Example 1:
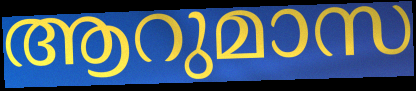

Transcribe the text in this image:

ആറുമാസ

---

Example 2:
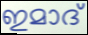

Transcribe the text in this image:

ഇമാദ്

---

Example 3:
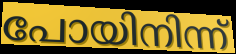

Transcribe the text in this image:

പോയിനിന്ന്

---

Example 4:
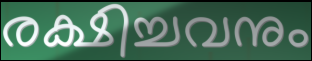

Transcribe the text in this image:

രക്ഷിച്ചവനും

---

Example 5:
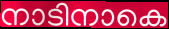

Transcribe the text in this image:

നാടിനാകെ